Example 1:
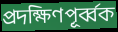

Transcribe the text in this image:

প্রদক্ষিণপূর্ব্বক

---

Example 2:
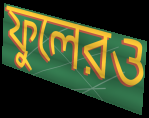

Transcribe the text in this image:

ফুলেরও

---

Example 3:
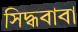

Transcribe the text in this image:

সিদ্ধবাবা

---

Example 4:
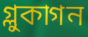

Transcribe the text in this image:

গ্লুকাগন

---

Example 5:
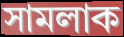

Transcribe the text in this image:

সামলাক